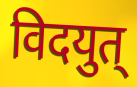
विदयुत्